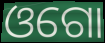
ଓଗୋ